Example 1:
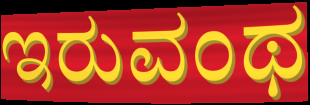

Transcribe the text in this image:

ಇರುವಂಥ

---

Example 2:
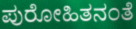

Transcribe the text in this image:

ಪುರೋಹಿತನಂತೆ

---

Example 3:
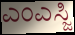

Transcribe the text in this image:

ಎಂಎಸ್ಜಿ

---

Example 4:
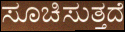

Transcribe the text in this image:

ಸೂಚಿಸುತ್ತದೆ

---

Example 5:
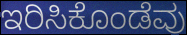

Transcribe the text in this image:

ಇರಿಸಿಕೊಂಡೆವು